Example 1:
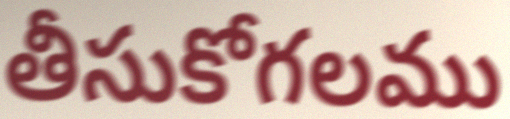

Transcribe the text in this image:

తీసుకోగలము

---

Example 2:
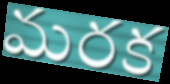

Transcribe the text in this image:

మరక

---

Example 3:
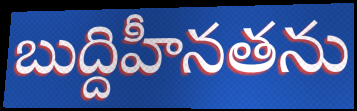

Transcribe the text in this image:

బుద్దిహీనతను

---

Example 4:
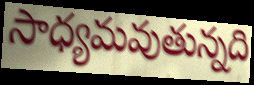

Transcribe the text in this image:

సాధ్యమవుతున్నది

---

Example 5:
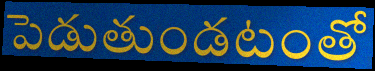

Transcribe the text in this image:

పెడుతుండటంతో